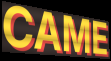
CAME